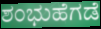
ಶಂಭುಹೆಗಡೆ